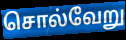
சொல்வேறு